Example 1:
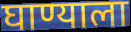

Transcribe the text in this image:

घाण्याला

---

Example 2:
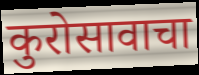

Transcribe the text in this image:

कुरोसावाचा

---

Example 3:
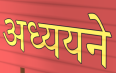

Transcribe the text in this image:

अध्ययने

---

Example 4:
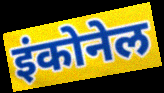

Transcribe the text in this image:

इंकोनेल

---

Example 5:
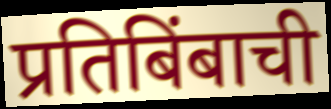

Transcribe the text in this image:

प्रतिबिंबाची